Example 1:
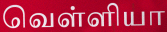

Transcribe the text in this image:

வெள்ளியா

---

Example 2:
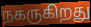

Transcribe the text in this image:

நகருகிறது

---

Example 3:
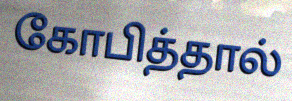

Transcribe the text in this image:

கோபித்தால்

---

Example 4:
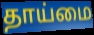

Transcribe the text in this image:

தாய்மை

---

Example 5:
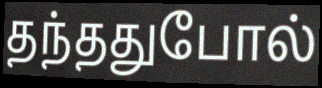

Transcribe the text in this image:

தந்ததுபோல்